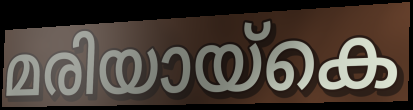
മരിയായ്കെ